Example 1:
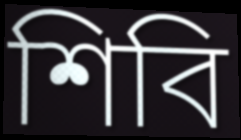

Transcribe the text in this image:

শিবি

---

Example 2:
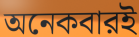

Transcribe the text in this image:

অনেকবারই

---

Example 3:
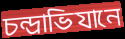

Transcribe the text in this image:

চন্দ্রাভিযানে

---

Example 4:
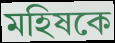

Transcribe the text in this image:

মহিষকে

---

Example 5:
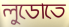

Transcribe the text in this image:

লুডোতে